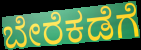
ಬೇರೆಕಡೆಗೆ